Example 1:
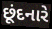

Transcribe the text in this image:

છૂંદનારે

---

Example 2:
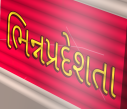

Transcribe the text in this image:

ભિન્નપ્રદેશતા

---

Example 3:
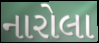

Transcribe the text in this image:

નારોલા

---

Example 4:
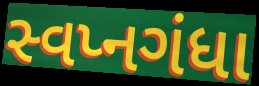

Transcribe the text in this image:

સ્વપ્નગંધા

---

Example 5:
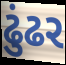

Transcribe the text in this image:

ઢુંઢર